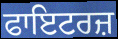
ਫਾਇਟਰਜ਼